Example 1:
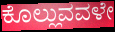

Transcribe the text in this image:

ಕೊಲ್ಲುವವಳೇ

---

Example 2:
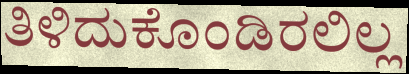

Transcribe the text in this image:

ತಿಳಿದುಕೊಂಡಿರಲಿಲ್ಲ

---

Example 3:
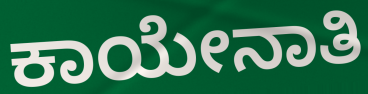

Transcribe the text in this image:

ಕಾಯೇನಾತಿ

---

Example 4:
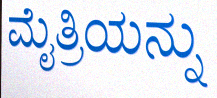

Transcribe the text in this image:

ಮೈತ್ರಿಯನ್ನು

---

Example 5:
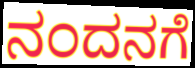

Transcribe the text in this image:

ನಂದನಗೆ